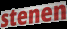
stenen